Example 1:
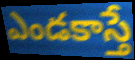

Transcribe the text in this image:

ఎండకాస్తే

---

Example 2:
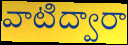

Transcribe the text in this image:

వాటిద్వారా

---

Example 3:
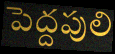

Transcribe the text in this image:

పెద్దపులి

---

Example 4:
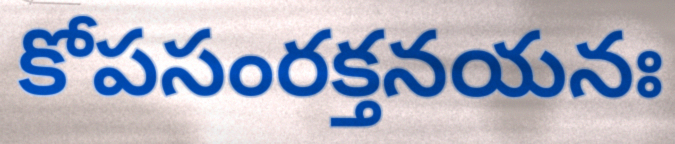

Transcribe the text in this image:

కోపసంరక్తనయనః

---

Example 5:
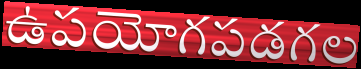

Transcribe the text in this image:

ఉపయోగపడగల